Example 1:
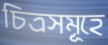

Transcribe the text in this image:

চিত্ৰসমূহে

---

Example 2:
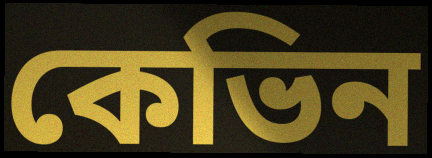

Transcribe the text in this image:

কেভিন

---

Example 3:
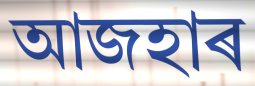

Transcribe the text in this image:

আজহাৰ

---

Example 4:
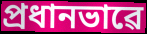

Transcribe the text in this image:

প্ৰধানভাৱে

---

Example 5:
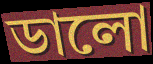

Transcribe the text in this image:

ডালো